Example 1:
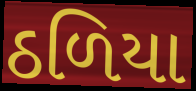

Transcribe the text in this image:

ઠળિયા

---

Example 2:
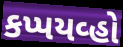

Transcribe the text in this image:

કપ્પયવ્હો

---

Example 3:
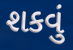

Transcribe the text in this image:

શકવું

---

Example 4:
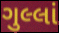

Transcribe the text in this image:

ગુલ્લાં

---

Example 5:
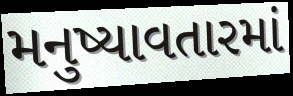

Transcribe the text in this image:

મનુષ્યાવતારમાં